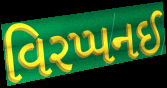
વિરપ્પનઈ